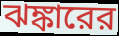
ঝঙ্কারের